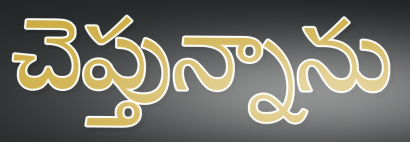
చెప్తున్నాను